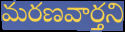
మరణవార్తని